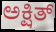
ಅಕ್ಷಿತ್